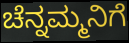
ಚೆನ್ನಮ್ಮನಿಗೆ